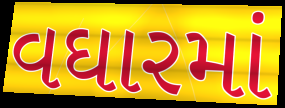
વઘારમાં